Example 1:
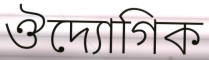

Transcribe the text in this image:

ঔদ্যোগিক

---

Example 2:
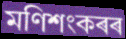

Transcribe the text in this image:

মণিশংকৰৰ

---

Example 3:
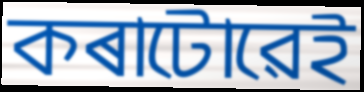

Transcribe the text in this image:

কৰাটোৱেই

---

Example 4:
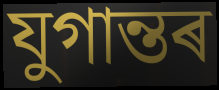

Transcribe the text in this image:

যুগান্তৰ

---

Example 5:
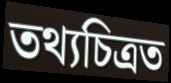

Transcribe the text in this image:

তথ্যচিত্ৰত